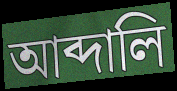
আব্দালি